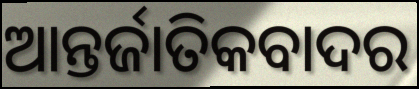
ଆନ୍ତର୍ଜାତିକବାଦର